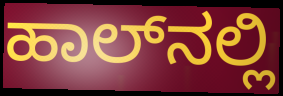
ಹಾಲ್‌ನಲ್ಲಿ